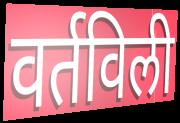
वर्तविली